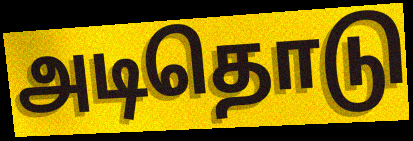
அடிதொடு